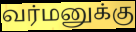
வர்மனுக்கு